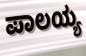
ಪಾಲಯ್ಯ